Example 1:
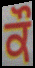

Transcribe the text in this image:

ਕੌ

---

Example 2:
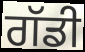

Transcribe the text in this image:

ਗੱਡੀ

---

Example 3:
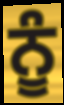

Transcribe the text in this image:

ਨੂੰ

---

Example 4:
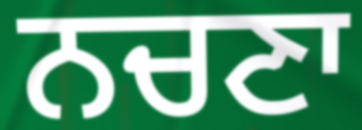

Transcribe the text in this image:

ਨਚਣਾ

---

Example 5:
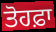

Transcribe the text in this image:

ਤੋਹਫ਼ਾ